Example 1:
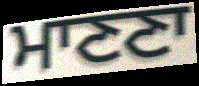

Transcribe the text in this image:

ਮਾਣਣਾ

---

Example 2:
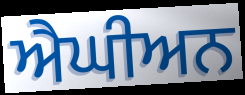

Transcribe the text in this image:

ਐਘੀਅਨ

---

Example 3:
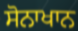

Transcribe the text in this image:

ਸੋਨਾਖਾਨ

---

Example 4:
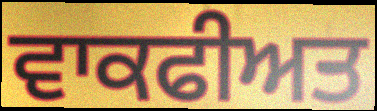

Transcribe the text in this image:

ਵਾਕਫੀਅਤ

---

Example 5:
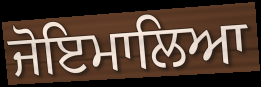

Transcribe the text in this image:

ਜੋਇਮਾਲਿਆ